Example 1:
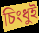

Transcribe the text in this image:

চিংধুই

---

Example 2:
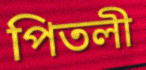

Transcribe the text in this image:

পিতলী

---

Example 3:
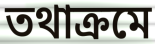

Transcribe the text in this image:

তথাক্ৰমে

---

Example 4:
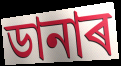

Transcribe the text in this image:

ডানাৰ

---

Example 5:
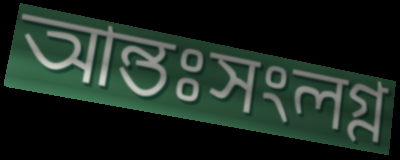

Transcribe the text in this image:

আন্তঃসংলগ্ন